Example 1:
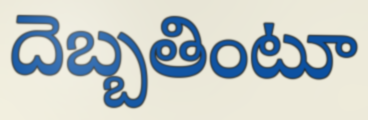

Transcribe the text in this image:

దెబ్బతింటూ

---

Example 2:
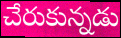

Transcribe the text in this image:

చేరుకున్నడు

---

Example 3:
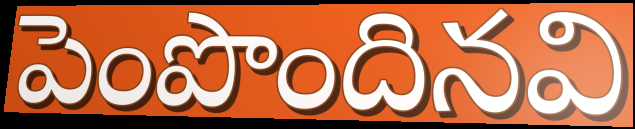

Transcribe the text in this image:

పెంపొందినవి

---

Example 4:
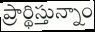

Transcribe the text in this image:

ప్రార్థిస్తున్నాం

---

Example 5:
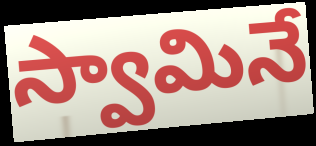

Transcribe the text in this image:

స్వామినే